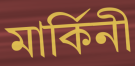
মার্কিনী